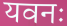
यवनः